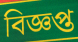
বিজ্ঞপ্ত